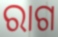
ରାଗ